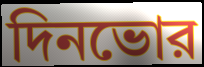
দিনভোর